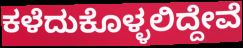
ಕಳೆದುಕೊಳ್ಳಲಿದ್ದೇವೆ